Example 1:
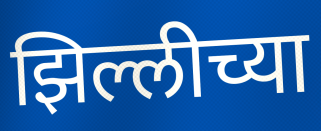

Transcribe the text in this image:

झिल्लीच्या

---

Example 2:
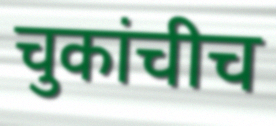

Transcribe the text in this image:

चुकांचीच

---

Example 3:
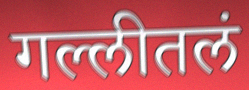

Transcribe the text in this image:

गल्लीतलं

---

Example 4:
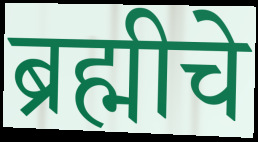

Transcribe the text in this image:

ब्रह्मीचे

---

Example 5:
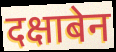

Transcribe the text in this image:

दक्षाबेन